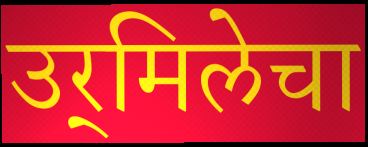
उर्मिलेचा